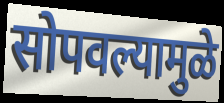
सोपवल्यामुळे